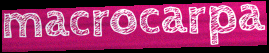
macrocarpa